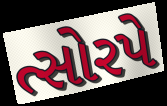
ત્સોરપે